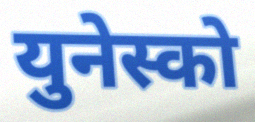
युनेस्को